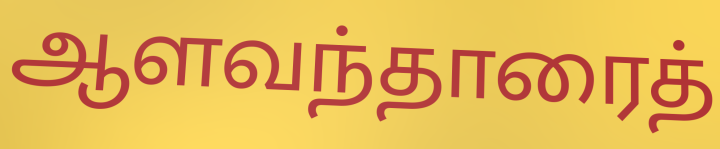
ஆளவந்தாரைத்